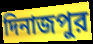
দিনাজপুর